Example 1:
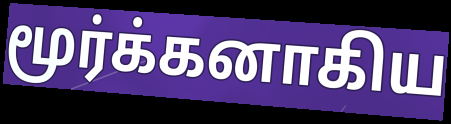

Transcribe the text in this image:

மூர்க்கனாகிய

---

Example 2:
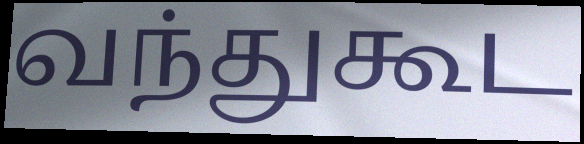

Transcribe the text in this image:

வந்துகூட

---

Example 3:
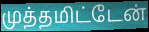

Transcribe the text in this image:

முத்தமிட்டேன்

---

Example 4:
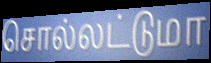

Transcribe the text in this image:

சொல்லட்டுமா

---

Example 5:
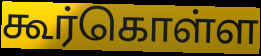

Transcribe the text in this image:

கூர்கொள்ள